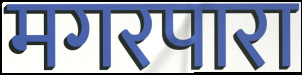
मगरपारा